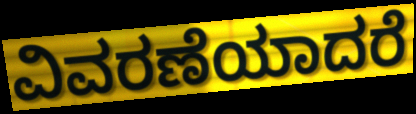
ವಿವರಣೆಯಾದರೆ